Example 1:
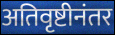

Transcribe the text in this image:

अतिवृष्टीनंतर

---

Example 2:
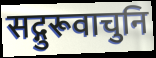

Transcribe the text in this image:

सद्गुरूवाचुनि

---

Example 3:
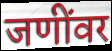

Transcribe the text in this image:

जणींवर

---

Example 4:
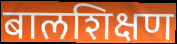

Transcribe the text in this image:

बालशिक्षण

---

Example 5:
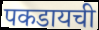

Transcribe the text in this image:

पकडायची